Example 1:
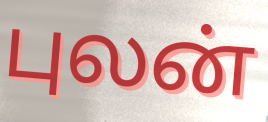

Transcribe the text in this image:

புலன்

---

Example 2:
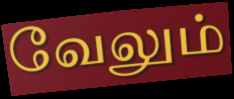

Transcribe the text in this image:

வேலும்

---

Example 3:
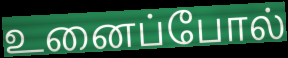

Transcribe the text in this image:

உனைப்போல்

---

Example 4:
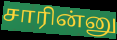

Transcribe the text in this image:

சாரின்னு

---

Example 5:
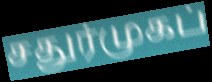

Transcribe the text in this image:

சதுர்முகப்